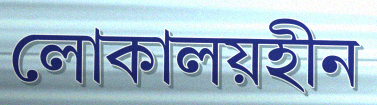
লোকালয়হীন